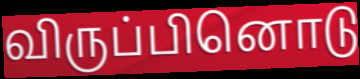
விருப்பினொடு